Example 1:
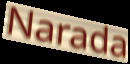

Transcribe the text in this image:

Narada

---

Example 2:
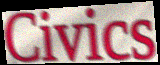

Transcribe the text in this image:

Civics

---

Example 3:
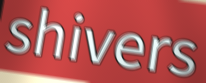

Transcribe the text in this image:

shivers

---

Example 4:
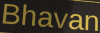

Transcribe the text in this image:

Bhavan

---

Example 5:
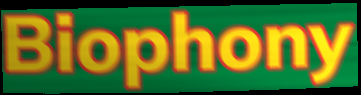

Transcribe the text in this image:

Biophony